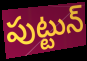
పుట్టున్